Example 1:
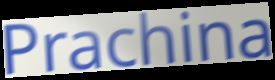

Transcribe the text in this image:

Prachina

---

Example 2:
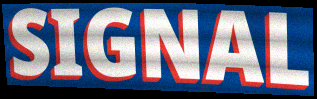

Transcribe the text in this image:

SIGNAL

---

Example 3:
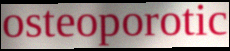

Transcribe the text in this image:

osteoporotic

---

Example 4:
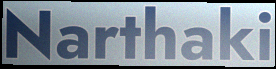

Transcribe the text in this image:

Narthaki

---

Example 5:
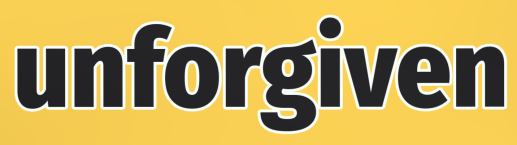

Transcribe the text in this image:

unforgiven